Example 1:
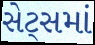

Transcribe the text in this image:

સેટ્સમાં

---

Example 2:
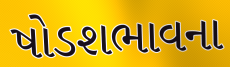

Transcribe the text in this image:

ષોડશભાવના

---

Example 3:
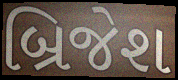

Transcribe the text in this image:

બ્રિજેશ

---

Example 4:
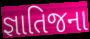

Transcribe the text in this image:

જ્ઞાતિજના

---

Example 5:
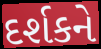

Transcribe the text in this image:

દર્શકને